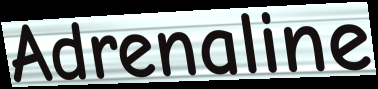
Adrenaline